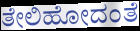
ತೇಲಿಹೋದಂತೆ